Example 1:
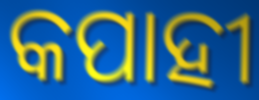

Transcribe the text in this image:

କପାହୀ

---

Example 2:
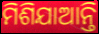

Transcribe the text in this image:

ମିଶିଯାଆନ୍ତି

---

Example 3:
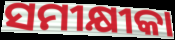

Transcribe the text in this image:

ସମୀକ୍ଷୀକା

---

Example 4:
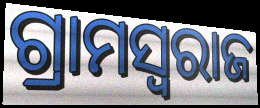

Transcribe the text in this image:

ଗ୍ରାମସ୍ବରାଜ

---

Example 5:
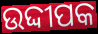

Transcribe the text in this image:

ଉଦ୍ଦୀପକ